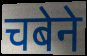
चबेने